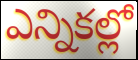
ఎన్నికల్లో